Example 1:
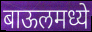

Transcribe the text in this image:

बाऊलमध्ये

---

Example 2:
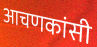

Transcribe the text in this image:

आचणकांसी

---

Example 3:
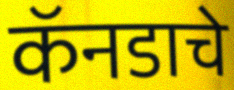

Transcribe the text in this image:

कॅनडाचे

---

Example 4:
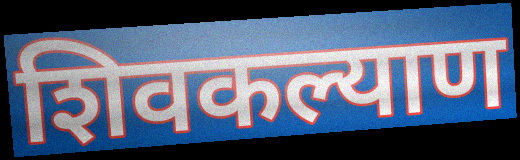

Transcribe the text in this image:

शिवकल्याण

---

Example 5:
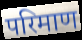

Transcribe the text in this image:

परिमाण